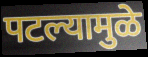
पटल्यामुळे